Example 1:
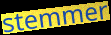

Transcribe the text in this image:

stemmer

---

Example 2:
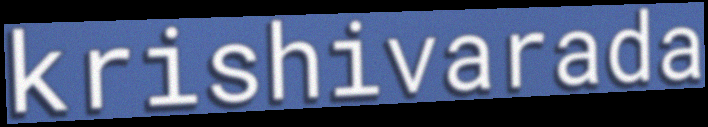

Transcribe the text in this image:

krishivarada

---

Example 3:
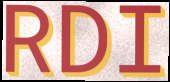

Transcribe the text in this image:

RDI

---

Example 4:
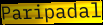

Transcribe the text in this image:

Paripadal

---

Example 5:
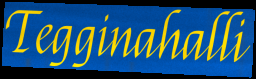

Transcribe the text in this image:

Tegginahalli